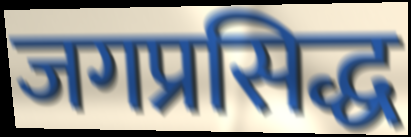
जगप्रसिद्ध